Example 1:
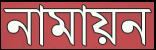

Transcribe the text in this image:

নামায়ন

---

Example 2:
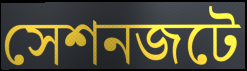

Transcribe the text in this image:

সেশনজটে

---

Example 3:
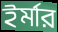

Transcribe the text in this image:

ইর্মার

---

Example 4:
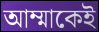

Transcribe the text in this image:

আম্মাকেই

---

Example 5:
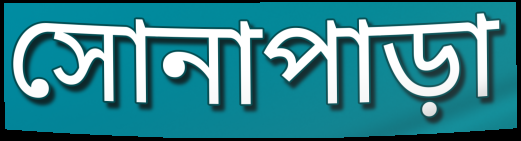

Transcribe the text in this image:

সোনাপাড়া